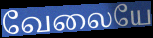
வேலையே